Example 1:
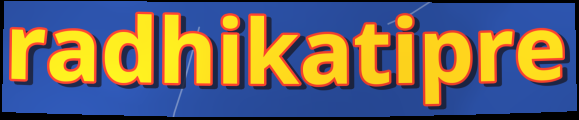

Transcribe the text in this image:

radhikatipre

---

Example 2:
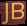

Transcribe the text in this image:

JB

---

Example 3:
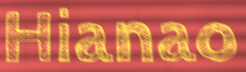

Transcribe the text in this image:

Hianao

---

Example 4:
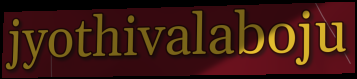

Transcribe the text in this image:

jyothivalaboju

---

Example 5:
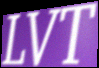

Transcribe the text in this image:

LVT